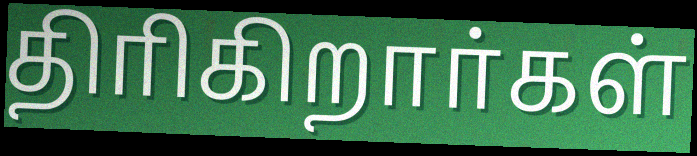
திரிகிறார்கள்